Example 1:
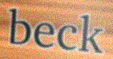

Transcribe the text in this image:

beck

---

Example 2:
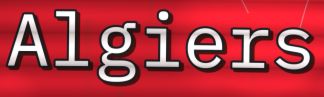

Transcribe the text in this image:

Algiers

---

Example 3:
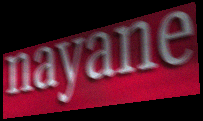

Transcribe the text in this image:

nayane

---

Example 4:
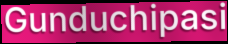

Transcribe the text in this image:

Gunduchipasi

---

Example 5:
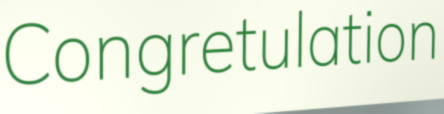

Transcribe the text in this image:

Congretulation